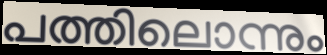
പത്തിലൊന്നും